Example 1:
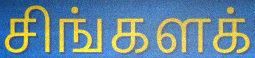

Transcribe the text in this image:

சிங்களக்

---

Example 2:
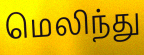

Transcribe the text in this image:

மெலிந்து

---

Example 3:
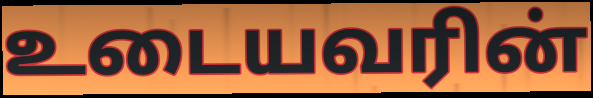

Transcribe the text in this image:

உடையவரின்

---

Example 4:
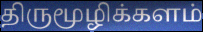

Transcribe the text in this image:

திருமூழிக்களம்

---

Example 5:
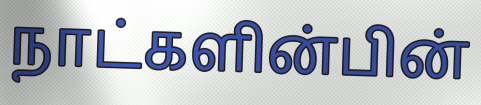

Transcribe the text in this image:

நாட்களின்பின்